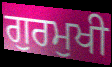
ਗੁਰਮੁਖੀ